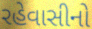
રહેવાસીનો